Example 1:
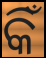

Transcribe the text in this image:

କିଁ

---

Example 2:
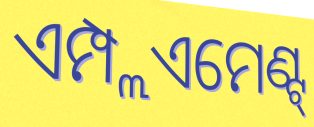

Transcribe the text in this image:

ଏମ୍ପ୍ଲଏମେଣ୍ଟ୍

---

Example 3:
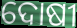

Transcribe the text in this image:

ଦୋଷୀ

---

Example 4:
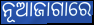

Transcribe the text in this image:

ନୂଆଜାଗାରେ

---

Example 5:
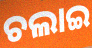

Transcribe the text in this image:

ଚଲାଇ